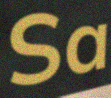
Sa